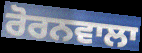
ਰੋਰਨਵਾਲਾ